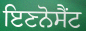
ਇਣਨੋਸੈਂਟ